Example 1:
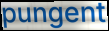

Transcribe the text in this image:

pungent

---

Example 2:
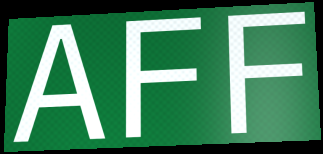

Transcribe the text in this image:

AFF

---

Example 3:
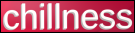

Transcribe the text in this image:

chillness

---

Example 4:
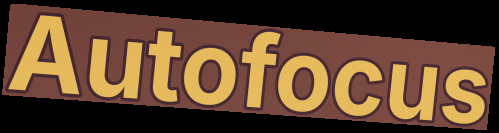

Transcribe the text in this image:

Autofocus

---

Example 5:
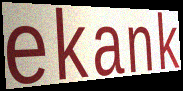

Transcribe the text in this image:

ekank